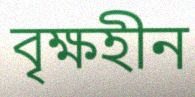
বৃক্ষহীন